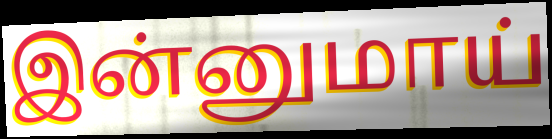
இன்னுமாய்